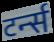
टर्न्स